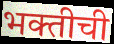
भक्‍तीची